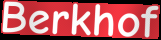
Berkhof